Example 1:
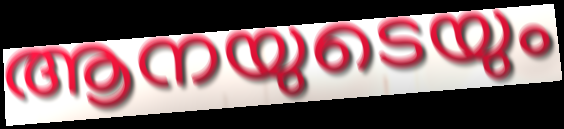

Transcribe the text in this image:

ആനയുടെയും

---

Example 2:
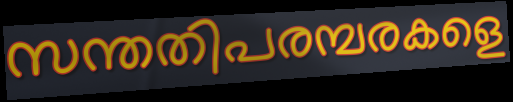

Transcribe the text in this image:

സന്തതിപരമ്പരകളെ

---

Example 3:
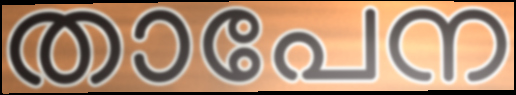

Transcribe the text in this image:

താപേന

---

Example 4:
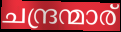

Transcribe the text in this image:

ചന്ദ്രന്മാര്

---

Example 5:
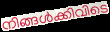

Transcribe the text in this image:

നിങ്ങൾക്കിവിടെ